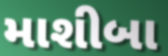
માશીબા